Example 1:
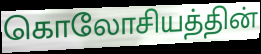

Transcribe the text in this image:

கொலோசியத்தின்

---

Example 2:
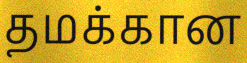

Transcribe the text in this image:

தமக்கான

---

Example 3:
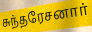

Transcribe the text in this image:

சுந்தரேசனார்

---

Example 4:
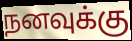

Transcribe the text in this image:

நனவுக்கு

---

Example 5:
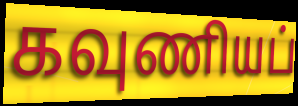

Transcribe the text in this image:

கவுணியப்